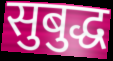
सुबुद्ध